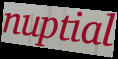
nuptial